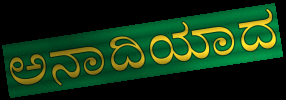
ಅನಾದಿಯಾದ